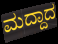
ಮದ್ದಾದ